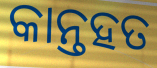
କାନ୍ତହତ